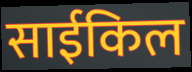
साईकिल